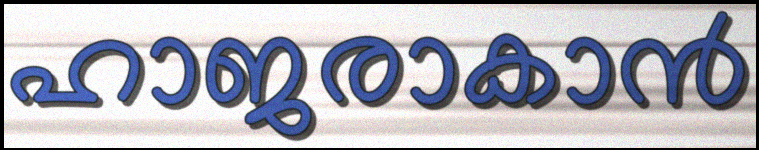
ഹാജരാകാൻ